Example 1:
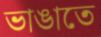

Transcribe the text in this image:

ভাঙাতে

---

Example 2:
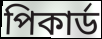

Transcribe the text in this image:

পিকার্ড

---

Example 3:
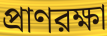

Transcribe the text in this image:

প্রাণরক্ষা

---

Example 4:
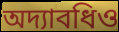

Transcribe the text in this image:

অদ্যাবধিও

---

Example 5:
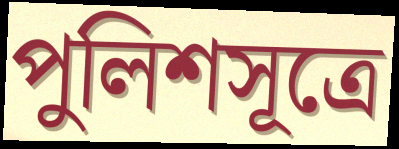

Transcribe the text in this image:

পুলিশসূত্রে